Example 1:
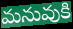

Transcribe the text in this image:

మనువుకి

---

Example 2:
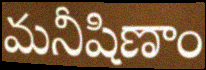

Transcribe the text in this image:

మనీషిణాం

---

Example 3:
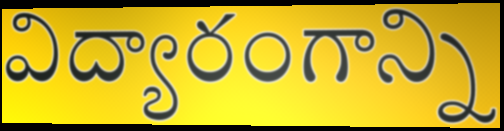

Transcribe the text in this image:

విద్యారంగాన్ని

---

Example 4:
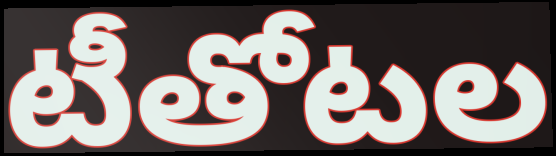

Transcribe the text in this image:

టీతోటల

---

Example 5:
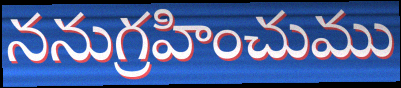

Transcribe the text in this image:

ననుగ్రహించుము